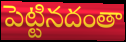
పెట్టినదంతా